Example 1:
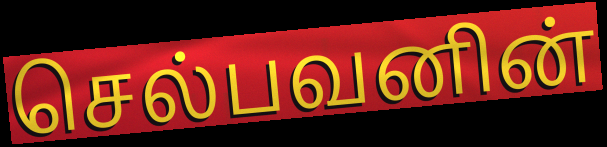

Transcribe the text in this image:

செல்பவனின்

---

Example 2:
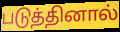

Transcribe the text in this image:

படுத்தினால்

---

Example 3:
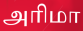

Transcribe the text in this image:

அரிமா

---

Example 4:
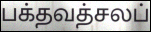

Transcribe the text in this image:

பக்தவத்சலப்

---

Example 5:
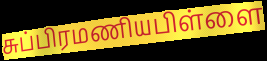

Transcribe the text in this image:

சுப்பிரமணியபிள்ளை